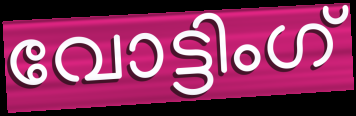
വോട്ടിംഗ്